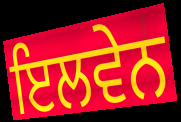
ਇਲਵੇਨ